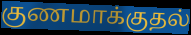
குணமாக்குதல்